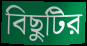
বিছুটির